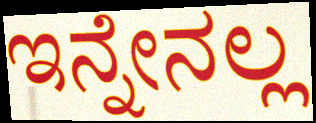
ಇನ್ನೇನಲ್ಲ